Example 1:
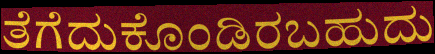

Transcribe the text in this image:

ತೆಗೆದುಕೊಂಡಿರಬಹುದು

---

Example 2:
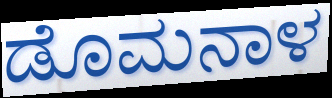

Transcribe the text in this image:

ಡೊಮನಾಳ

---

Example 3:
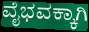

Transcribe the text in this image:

ವೈಭವಕ್ಕಾಗಿ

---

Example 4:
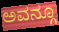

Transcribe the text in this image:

ಅವನ್ಗೂ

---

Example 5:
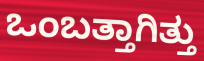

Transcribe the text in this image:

ಒಂಬತ್ತಾಗಿತ್ತು